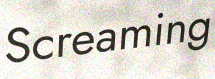
Screaming